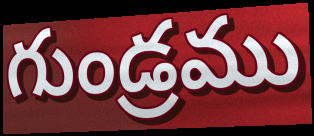
గుండ్రము